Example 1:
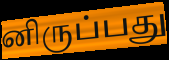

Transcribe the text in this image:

னிருப்பது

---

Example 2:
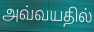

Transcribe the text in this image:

அவ்வயதில்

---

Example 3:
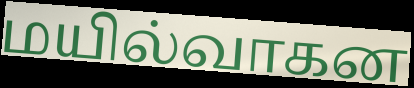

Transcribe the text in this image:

மயில்வாகன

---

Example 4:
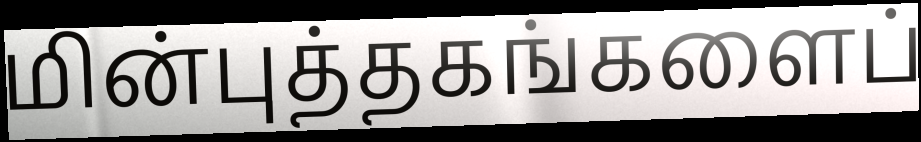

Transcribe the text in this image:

மின்புத்தகங்களைப்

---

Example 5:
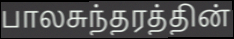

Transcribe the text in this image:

பாலசுந்தரத்தின்